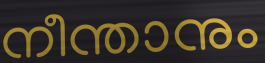
നീന്താനും